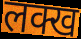
लक्ख